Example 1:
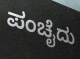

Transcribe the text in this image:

ಪಂಚೈದು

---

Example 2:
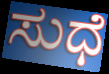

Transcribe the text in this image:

ಸುಧೆ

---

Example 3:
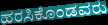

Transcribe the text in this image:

ಹರಸಿಕೊಂಡವರು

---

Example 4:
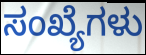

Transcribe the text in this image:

ಸಂಖ್ಯೆಗಳು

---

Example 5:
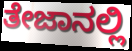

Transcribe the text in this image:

ತೇಜಾನಲ್ಲಿ